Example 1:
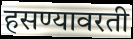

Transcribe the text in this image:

हसण्यावरती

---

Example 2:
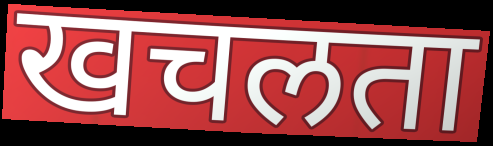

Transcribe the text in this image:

खचलता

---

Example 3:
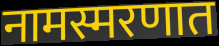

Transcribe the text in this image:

नामस्मरणात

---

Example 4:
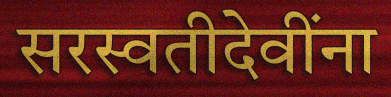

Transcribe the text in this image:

सरस्वतीदेवींना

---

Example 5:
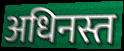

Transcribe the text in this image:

अधिनस्त